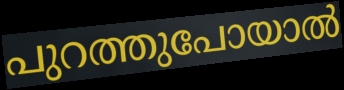
പുറത്തുപോയാൽ